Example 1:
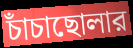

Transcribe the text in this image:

চাঁচাছোলার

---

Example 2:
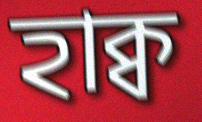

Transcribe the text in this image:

হাক্ব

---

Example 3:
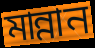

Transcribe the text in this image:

মান্নান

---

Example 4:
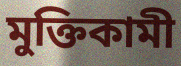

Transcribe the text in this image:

মুক্তিকামী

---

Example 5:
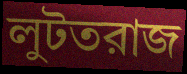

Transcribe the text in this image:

লুটতরাজ